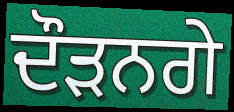
ਦੌੜਨਗੇ